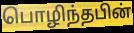
பொழிந்தபின்